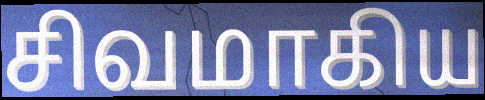
சிவமாகிய